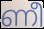
ണീ